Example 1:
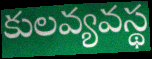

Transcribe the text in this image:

కులవ్యవస్థ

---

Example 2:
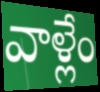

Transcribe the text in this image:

వాళ్లేం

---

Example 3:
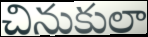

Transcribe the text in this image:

చినుకులా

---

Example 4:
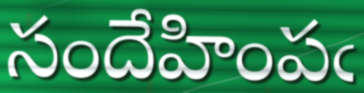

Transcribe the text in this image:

సందేహింపఁ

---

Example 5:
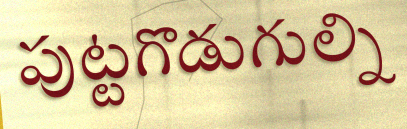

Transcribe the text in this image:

పుట్టగొడుగుల్ని